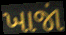
ખાજાં